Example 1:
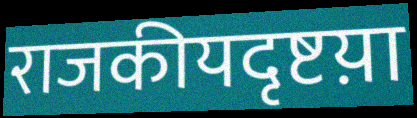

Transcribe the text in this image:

राजकीयदृष्टय़ा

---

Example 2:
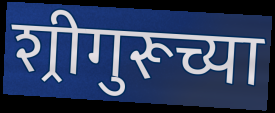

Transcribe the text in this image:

श्रीगुरूच्या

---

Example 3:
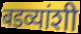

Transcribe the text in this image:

बडव्यांशी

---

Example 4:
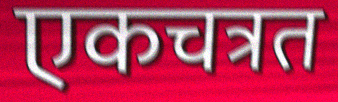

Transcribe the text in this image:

एकचत्रत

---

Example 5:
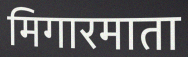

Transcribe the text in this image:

मिगारमाता